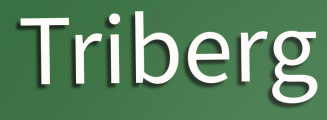
Triberg